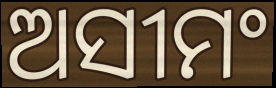
ଅସୀମଂ